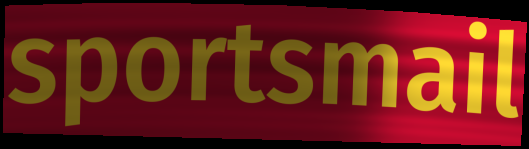
sportsmail